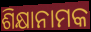
ଶିକ୍ଷାନାମକ